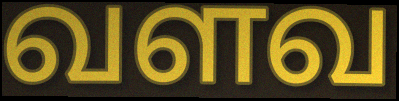
வளவ